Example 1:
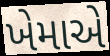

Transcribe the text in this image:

ખેમાએ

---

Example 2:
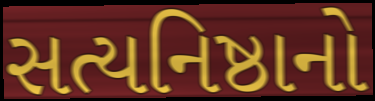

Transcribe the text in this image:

સત્યનિષ્ઠાનો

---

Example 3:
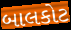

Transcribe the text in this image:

બાલકોટ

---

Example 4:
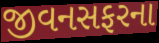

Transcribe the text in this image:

જીવનસફરના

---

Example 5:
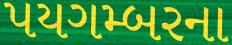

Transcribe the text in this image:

પયગમ્બરના